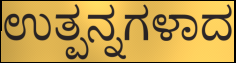
ಉತ್ಪನ್ನಗಳಾದ